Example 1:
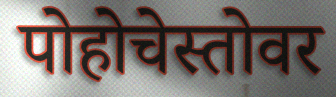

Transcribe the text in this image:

पोहोचेस्तोवर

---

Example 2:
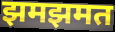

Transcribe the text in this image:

झमझमत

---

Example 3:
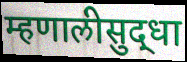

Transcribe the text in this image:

म्हणालीसुद्धा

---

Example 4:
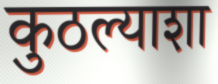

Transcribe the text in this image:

कुठल्याशा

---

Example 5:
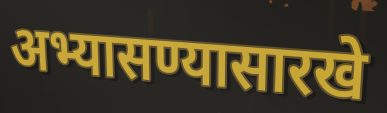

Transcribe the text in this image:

अभ्यासण्यासारखे